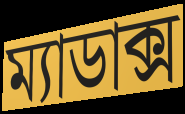
ম্যাডাক্স